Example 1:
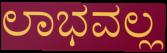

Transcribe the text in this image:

ಲಾಭವಲ್ಲ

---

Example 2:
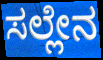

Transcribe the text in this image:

ಸಲ್ಲೇನ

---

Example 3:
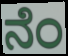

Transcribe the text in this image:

ನೆಂ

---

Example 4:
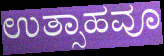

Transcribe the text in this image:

ಉತ್ಸಾಹವೂ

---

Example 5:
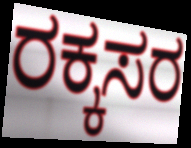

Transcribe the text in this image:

ರಕ್ಕಸರ